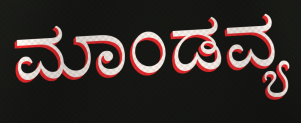
ಮಾಂಡವ್ಯ